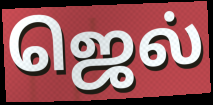
ஜெல்